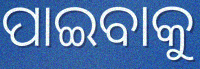
ପାଇବାକୁ